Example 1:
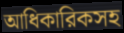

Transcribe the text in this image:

আধিকারিকসহ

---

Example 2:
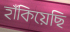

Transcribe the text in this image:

হাঁকিয়েছি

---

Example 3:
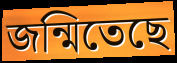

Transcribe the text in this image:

জন্মিতেছে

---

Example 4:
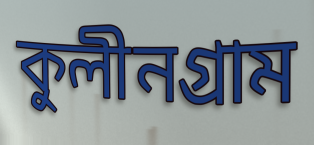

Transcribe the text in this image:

কুলীনগ্রাম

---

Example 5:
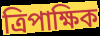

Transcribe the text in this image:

ত্রিপাক্ষিক